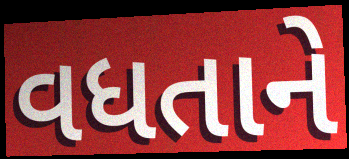
વધતાને